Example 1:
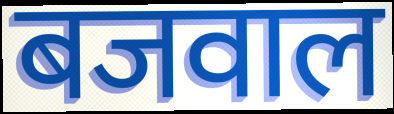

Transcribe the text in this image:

बजवाल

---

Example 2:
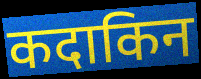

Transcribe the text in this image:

कदाकिन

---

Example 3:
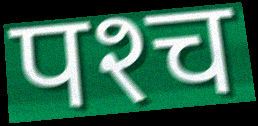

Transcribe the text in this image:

पश्च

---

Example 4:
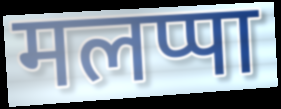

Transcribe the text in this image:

मलप्पा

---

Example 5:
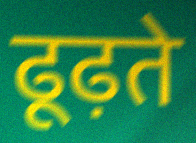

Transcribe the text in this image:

ढूढ़ते